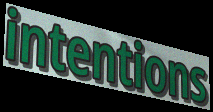
intentions